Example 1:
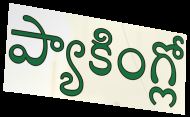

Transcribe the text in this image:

ప్యాకింగ్లో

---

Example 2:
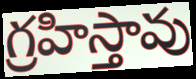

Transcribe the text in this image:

గ్రహిస్తావు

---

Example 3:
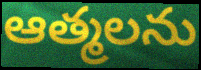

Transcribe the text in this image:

ఆత్మలను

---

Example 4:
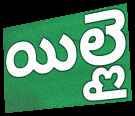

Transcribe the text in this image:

యిల్లై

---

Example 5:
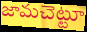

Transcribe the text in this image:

జామచెట్టూ